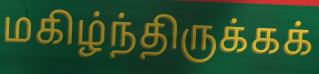
மகிழ்ந்திருக்கக்